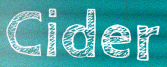
Cider